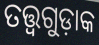
ତତ୍ତ୍ୱଗୁଡ଼ାକ